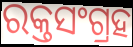
ରକ୍ତସଂଗ୍ରହ